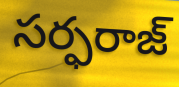
సర్ఫరాజ్